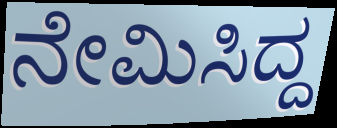
ನೇಮಿಸಿದ್ದ